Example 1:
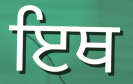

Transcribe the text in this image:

ਇਥ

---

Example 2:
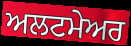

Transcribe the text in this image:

ਅਲਟਮੇਅਰ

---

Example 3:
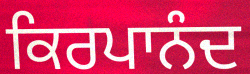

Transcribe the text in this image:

ਕਿਰਪਾਨੰਦ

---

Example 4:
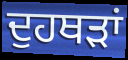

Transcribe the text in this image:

ਦੁਹਥੜਾਂ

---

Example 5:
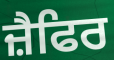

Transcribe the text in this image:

ਜ਼ੈਫਿਰ